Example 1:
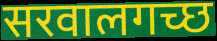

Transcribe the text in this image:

सरवालगच्छ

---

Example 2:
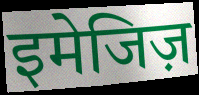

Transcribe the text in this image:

इमेजिज़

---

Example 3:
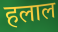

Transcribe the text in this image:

हलाल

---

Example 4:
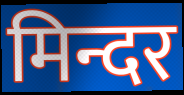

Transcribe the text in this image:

मिन्दर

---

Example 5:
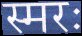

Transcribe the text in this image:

स्मरः